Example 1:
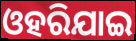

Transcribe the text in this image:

ଓହରିଯାଇ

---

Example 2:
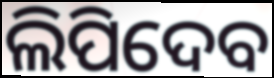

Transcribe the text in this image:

ଲିପିଦେବ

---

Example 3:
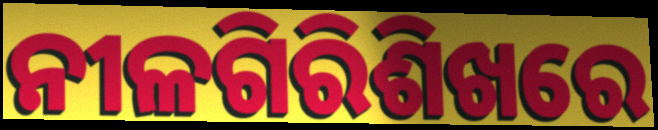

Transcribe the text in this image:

ନୀଳଗିରିଶିଖରେ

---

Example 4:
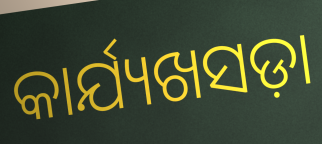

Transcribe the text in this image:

କାର୍ଯ୍ୟଖସଡ଼ା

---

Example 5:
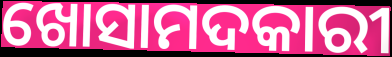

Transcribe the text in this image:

ଖୋସାମଦକାରୀ